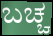
ಬಚ್ಚ